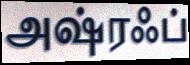
அஷ்ரஃப்